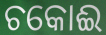
ଚକୋଈ